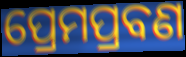
ପ୍ରେମପ୍ରବଣ